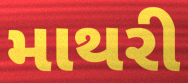
માથરી